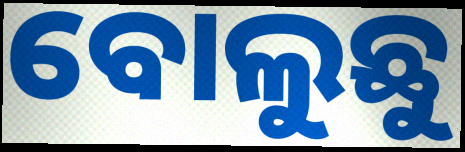
ବୋଲୁଛୁ